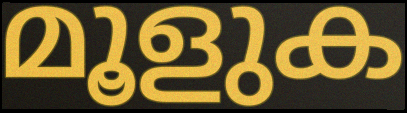
മൂളുക